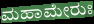
ಮಹಾಮೇರುಃ